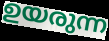
ഉയരുന്ന